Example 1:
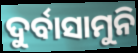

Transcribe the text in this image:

ଦୁର୍ବାସାମୁନି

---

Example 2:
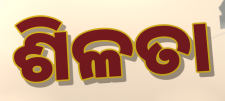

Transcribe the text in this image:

ଶିଳତା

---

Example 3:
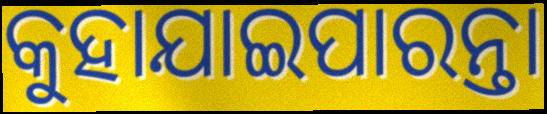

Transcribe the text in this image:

କୁହାଯାଇପାରନ୍ତା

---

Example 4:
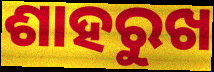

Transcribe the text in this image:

ଶାହରୁଖ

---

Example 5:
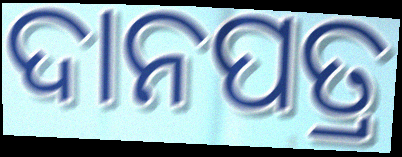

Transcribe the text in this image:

ଦାନପତ୍ର